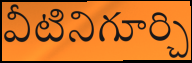
వీటినిగూర్చి